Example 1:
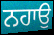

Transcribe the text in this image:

ਨਹਾਉ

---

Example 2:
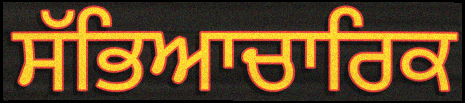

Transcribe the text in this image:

ਸੱਭਿਆਚਾਰਿਕ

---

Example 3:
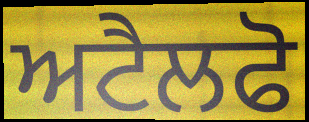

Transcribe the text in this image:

ਅਟੈਲਫੋ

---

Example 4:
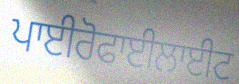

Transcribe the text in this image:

ਪਾਈਰੋਫਾਈਲਾਈਟ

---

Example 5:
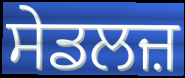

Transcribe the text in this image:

ਸੇਡਲਜ਼